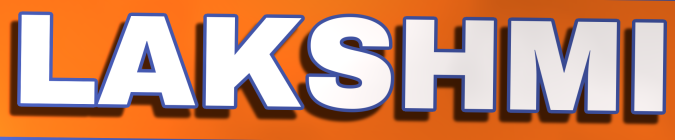
LAKSHMI